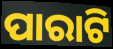
ପାରାଟି